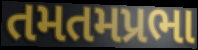
તમતમપ્રભા